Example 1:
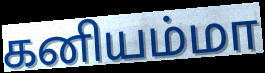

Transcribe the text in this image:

கனியம்மா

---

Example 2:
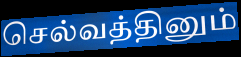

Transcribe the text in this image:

செல்வத்தினும்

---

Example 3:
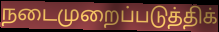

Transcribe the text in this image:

நடைமுறைப்படுத்திக்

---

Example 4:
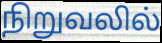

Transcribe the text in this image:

நிறுவலில்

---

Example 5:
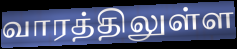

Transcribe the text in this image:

வாரத்திலுள்ள